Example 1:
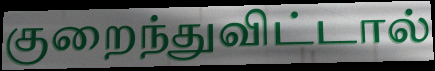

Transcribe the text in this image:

குறைந்துவிட்டால்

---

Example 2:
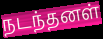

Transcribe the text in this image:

நடந்தனள்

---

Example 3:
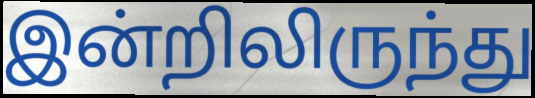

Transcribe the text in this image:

இன்றிலிருந்து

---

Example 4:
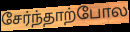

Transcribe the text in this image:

சேர்ந்தாற்போல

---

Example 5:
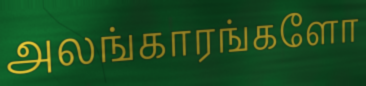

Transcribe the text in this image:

அலங்காரங்களோ